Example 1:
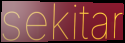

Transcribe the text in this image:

sekitar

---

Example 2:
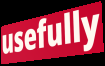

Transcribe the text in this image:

usefully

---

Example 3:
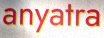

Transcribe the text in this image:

anyatra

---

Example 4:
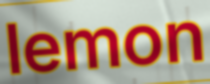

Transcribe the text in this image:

lemon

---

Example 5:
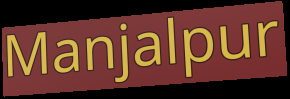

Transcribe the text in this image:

Manjalpur